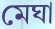
মেঘা